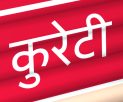
कुरेटी